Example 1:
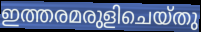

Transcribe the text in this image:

ഇത്തരമരുളിചെയ്തു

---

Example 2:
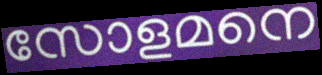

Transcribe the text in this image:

സോളമനെ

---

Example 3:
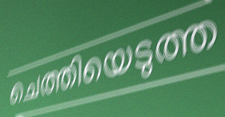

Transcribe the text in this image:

ചെത്തിയെടുത്ത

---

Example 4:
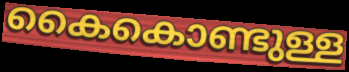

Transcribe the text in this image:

കൈകൊണ്ടുള്ള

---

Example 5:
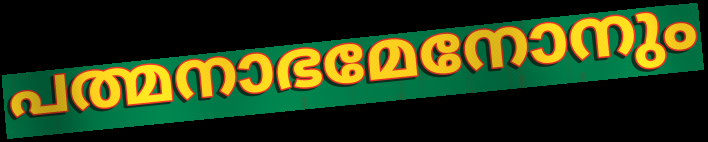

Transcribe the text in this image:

പത്മനാഭമേനോനും